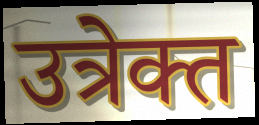
उत्रेक्त